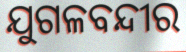
ଯୁଗଳବନ୍ଦୀର